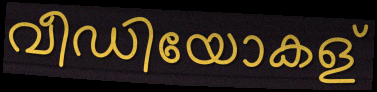
വീഡിയോകള്